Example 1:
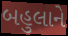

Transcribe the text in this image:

બહુલાને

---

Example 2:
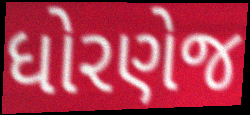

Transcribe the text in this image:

ધોરણેજ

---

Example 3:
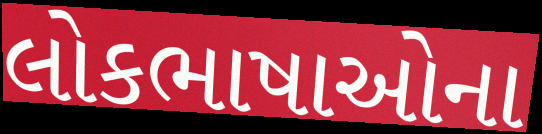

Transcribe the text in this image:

લોકભાષાઓના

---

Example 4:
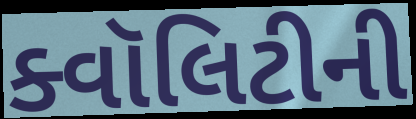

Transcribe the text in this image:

ક્વૉલિટીની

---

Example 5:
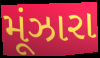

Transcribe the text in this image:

મૂંઝારા